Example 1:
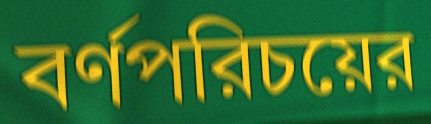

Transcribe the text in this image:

বর্ণপরিচয়ের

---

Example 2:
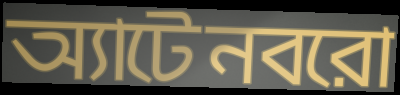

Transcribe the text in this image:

অ্যাটেনবরো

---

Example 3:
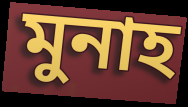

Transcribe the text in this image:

মুনাহ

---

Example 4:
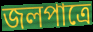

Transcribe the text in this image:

জলপাত্রে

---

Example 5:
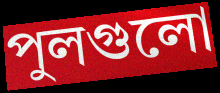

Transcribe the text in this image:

পুলগুলো